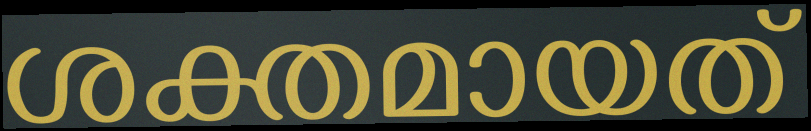
ശക്തമായത്